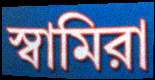
স্বামিরা